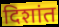
दिशांत